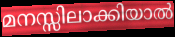
മനസ്സിലാക്കിയാൽ